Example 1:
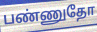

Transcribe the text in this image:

பண்ணுதோ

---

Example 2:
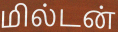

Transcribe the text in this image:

மில்டன்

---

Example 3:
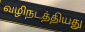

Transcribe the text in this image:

வழிநடத்தியது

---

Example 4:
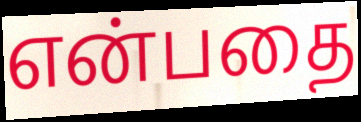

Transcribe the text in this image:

என்பதை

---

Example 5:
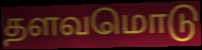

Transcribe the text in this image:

தளவமொடு